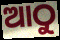
ଆଠୁ